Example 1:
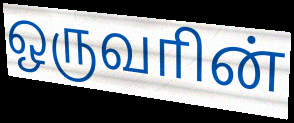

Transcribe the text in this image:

ஒருவரின்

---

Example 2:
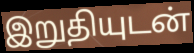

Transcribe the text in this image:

இறுதியுடன்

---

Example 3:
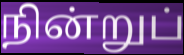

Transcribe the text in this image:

நின்றுப்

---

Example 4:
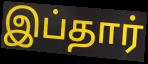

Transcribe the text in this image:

இப்தார்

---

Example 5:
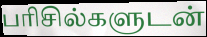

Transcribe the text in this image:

பரிசில்களுடன்